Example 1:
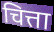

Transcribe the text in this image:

चित्ता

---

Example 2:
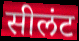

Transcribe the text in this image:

सीलंट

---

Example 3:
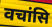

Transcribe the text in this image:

वचांसि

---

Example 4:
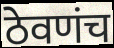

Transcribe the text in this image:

ठेवणंच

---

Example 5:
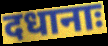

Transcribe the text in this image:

दधानाः